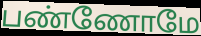
பண்ணோமே